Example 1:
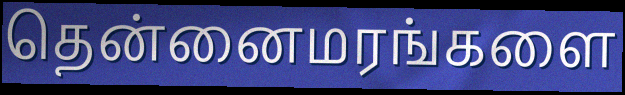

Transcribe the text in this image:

தென்னைமரங்களை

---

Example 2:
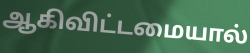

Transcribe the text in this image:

ஆகிவிட்டமையால்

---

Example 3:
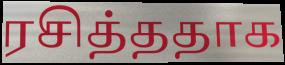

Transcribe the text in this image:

ரசித்ததாக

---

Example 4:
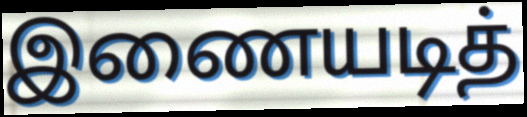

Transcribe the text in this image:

இணையடித்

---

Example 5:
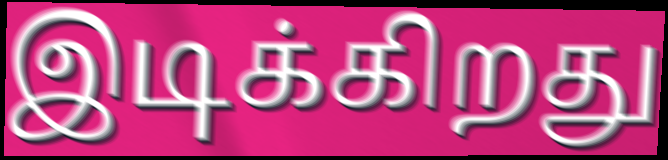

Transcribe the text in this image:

இடிக்கிறது